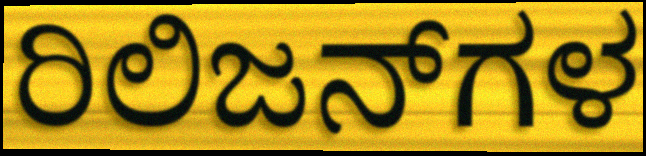
ರಿಲಿಜನ್‌ಗಳ